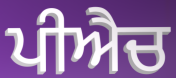
ਪੀਐਚ